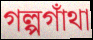
গল্পগাঁথা